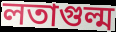
লতাগুল্ম